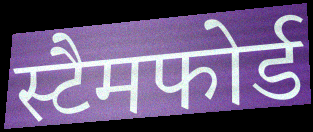
स्टैमफोर्ड